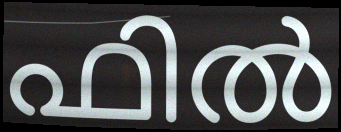
ഫിൽ